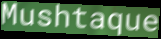
Mushtaque